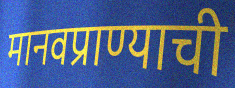
मानवप्राण्याची